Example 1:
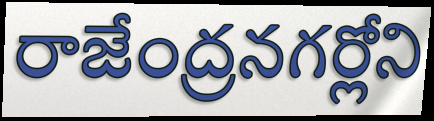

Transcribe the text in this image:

రాజేంద్రనగర్లోని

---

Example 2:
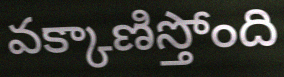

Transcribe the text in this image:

వక్కాణిస్తోంది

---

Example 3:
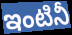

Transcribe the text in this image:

ఇంటినీ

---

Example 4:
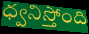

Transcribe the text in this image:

ధ్వనిస్తోంది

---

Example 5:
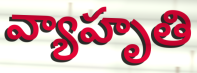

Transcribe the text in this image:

వ్యాహృతి